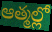
ఆత్మల్లో